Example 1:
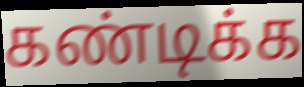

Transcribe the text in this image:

கண்டிக்க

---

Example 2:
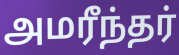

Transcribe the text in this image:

அமரீந்தர்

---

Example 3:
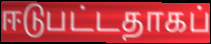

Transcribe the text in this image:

ஈடுபட்டதாகப்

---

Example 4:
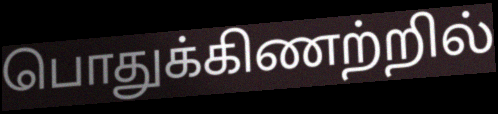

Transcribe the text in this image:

பொதுக்கிணற்றில்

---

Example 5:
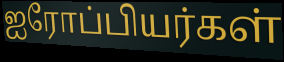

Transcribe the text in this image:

ஐரோப்பியர்கள்